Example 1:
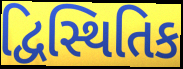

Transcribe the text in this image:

દ્વિસ્થિતિક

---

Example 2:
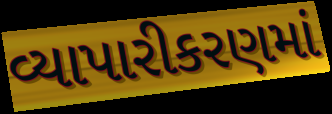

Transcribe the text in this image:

વ્યાપારીકરણમાં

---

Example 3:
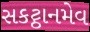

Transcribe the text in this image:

સકટ્ઠાનમેવ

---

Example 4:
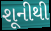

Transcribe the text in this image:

શૂનીથી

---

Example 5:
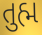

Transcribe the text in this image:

તુહ્મ